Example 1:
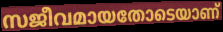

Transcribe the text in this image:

സജീവമായതോടെയാണ്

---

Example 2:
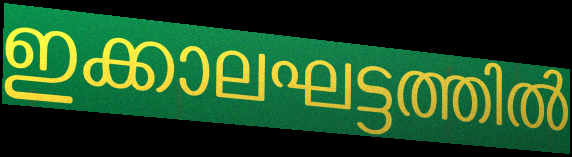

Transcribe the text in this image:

ഇക്കാലഘട്ടത്തിൽ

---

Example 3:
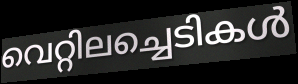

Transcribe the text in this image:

വെറ്റിലച്ചെടികൾ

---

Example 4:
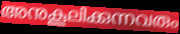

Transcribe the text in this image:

അനുകൂലിക്കുന്നവരും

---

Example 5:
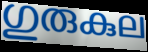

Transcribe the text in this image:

ഗുരുകുല